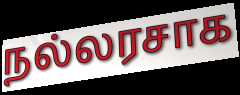
நல்லரசாக